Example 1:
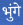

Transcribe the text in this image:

भुंगे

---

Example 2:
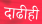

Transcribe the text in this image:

दाढीही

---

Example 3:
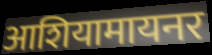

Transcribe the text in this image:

आशियामायनर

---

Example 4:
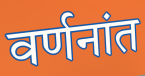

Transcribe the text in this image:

वर्णनांत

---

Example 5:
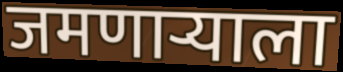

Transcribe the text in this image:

जमणाऱ्याला